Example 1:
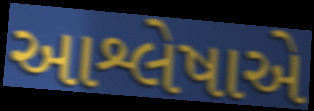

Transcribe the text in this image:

આશ્લેષાએ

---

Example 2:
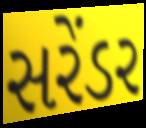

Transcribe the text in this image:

સરેંડર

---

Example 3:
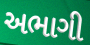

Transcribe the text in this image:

અભાગી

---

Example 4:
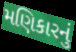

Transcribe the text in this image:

મણિકારનું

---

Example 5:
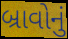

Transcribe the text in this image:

બ્રાવોનું